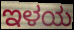
ಇಳಯ